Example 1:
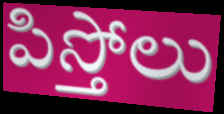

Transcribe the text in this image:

పిస్తోలు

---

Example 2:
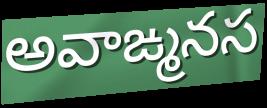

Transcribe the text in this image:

అవాఙ్మనస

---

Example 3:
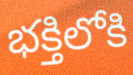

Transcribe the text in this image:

భక్తిలోకి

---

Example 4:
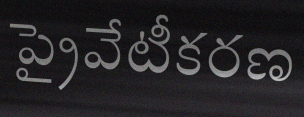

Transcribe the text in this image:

ప్రైవేటీకరణ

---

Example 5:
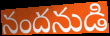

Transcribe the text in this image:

నందనుడి